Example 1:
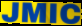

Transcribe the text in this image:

JMIC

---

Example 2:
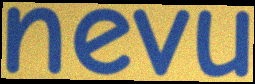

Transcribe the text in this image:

nevu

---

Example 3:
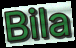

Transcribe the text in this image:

Bila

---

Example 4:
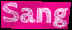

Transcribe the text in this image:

Sang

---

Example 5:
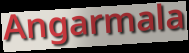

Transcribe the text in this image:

Angarmala